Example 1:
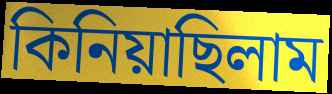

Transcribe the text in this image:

কিনিয়াছিলাম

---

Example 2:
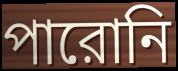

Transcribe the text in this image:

পারোনি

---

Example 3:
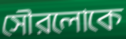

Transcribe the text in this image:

সৌরলোকে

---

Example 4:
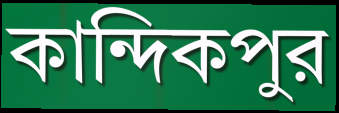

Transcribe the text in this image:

কান্দিকপুর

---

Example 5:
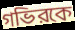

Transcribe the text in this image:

গভিরকে